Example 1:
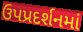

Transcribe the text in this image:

ઉપપ્રદર્શનમાં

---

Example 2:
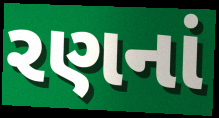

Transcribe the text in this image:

રણનાં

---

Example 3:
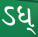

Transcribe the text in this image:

ઽધ્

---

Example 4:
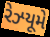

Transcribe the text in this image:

રેઝ્યૂમે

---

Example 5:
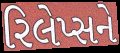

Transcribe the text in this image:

રિલેપ્સને